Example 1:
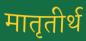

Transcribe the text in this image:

मातृतीर्थ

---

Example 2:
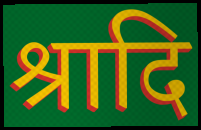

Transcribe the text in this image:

श्रादि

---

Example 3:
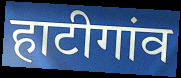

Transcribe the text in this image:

हाटीगांव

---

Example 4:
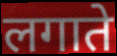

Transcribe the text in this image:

लगाते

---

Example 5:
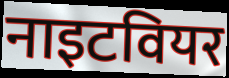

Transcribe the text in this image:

नाइटवियर